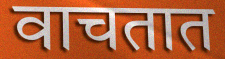
वाचतात